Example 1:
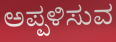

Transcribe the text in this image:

ಅಪ್ಪಳಿಸುವ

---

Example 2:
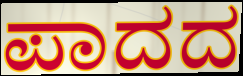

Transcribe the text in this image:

ಪಾದದ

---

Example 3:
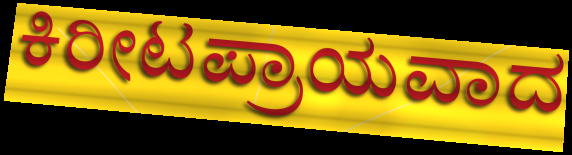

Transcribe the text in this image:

ಕಿರೀಟಪ್ರಾಯವಾದ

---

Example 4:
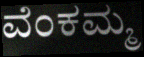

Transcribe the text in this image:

ವೆಂಕಮ್ಮ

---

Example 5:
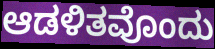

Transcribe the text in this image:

ಆಡಳಿತವೊಂದು